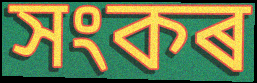
সংকৰ